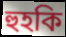
হুহকি